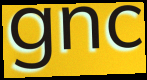
gnc